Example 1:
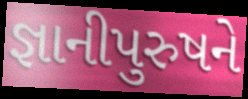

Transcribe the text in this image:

જ્ઞાનીપુરુષને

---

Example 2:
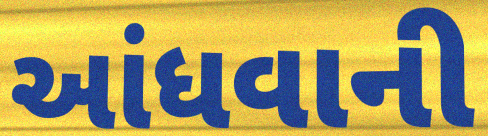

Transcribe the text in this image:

આંધવાની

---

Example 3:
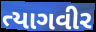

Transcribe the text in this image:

ત્યાગવીર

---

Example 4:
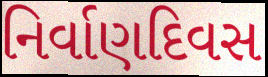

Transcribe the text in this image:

નિર્વાણદિવસ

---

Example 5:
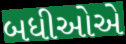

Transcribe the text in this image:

બધીઓએ